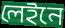
লেইনে